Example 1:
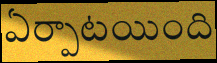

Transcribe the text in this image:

ఏర్పాటయింది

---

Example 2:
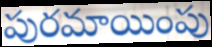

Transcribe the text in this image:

పురమాయింపు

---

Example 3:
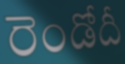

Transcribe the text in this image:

రెండోదీ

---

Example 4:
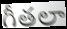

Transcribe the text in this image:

గీతలా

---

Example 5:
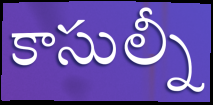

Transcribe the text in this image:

కాసుల్నీ